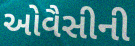
ઓવૈસીની